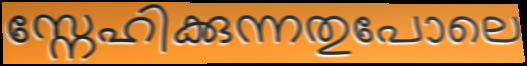
സ്നേഹിക്കുന്നതുപോലെ